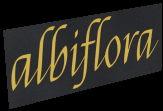
albiflora